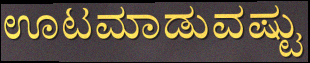
ಊಟಮಾಡುವಷ್ಟು